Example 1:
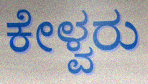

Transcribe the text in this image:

ಕೇಳ್ವರು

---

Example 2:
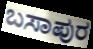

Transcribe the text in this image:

ಬಸಾಪುರ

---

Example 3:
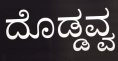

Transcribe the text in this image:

ದೊಡ್ಡವ್ವ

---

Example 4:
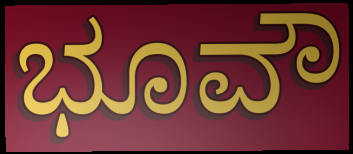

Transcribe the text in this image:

ಭೂವೌ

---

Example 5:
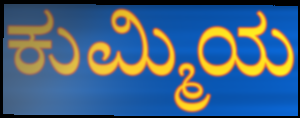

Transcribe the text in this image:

ಕುಮ್ಮಿಯ